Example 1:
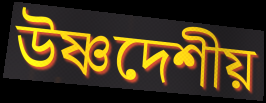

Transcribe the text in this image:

উষ্ণদেশীয়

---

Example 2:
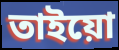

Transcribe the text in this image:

তাইয়ো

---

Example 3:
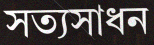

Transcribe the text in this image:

সত্যসাধন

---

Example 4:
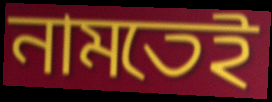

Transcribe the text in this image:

নামতেই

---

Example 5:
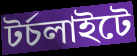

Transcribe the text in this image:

টর্চলাইটে